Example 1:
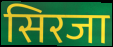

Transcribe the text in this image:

सिरजा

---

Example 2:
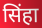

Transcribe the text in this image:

सिंहा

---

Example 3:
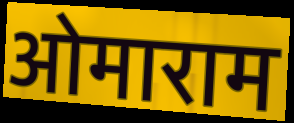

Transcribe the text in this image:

ओमाराम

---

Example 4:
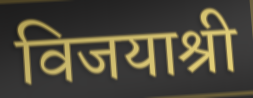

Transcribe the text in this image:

विजयाश्री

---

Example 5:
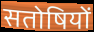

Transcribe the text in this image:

सतोषियों